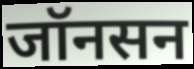
जॉनसन